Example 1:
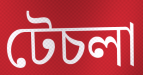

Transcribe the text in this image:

টেচলা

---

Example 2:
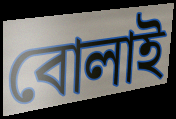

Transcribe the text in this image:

বোলাই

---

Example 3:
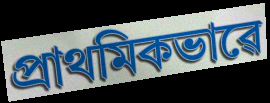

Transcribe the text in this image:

প্ৰাথমিকভাৱে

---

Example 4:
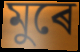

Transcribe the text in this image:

মুৰে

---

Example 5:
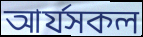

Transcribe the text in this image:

আৰ্যসকল